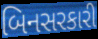
બિનસરકારી